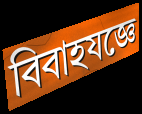
বিবাহযজ্ঞে